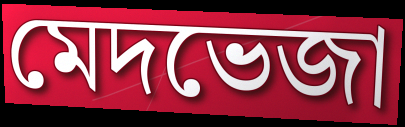
মেদভেজা